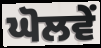
ਘੋਲਵੇਂ